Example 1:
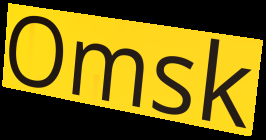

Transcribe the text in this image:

Omsk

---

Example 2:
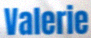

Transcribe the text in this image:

Valerie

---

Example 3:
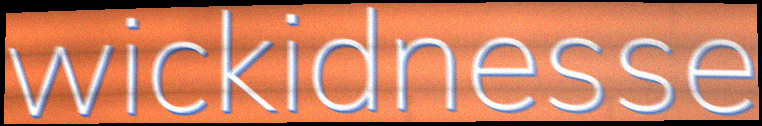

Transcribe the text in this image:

wickidnesse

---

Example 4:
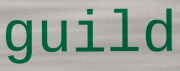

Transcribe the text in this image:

guild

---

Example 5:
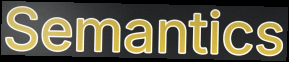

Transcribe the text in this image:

Semantics